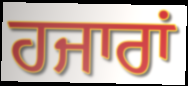
ਹਜਾਰਾਂ